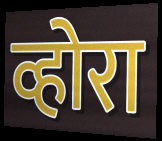
व्होरा